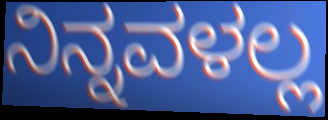
ನಿನ್ನವಳಲ್ಲ